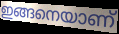
ഇങ്ങനെയാണ്